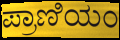
ಪ್ರಾಣಿಯಂ